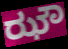
ಝೌ